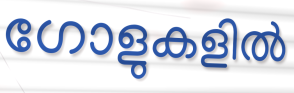
ഗോളുകളിൽ